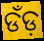
ଡଁଡ଼